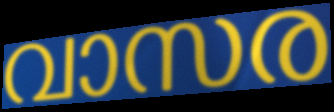
വാസര